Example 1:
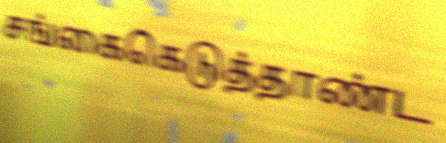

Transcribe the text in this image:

சங்கைகெடுத்தாண்ட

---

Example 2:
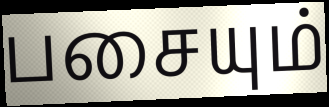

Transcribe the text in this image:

பசையும்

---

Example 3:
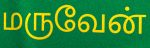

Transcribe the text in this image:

மருவேன்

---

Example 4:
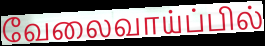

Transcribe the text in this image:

வேலைவாய்ப்பில்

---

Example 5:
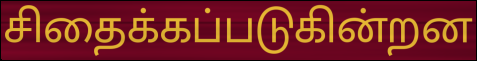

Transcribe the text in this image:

சிதைக்கப்படுகின்றன